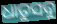
ଧାତୁସବୁ